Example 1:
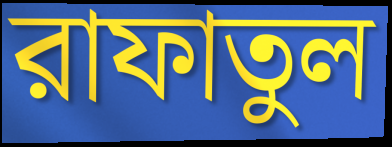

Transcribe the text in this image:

রাফাতুল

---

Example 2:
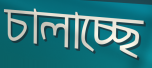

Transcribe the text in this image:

চালাচ্ছে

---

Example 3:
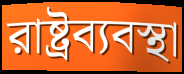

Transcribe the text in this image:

রাষ্ট্রব্যবস্থা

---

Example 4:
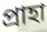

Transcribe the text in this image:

প্রাহা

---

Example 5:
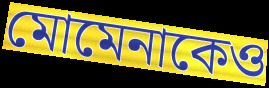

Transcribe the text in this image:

মোমেনাকেও